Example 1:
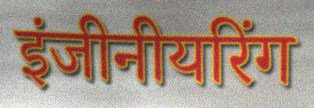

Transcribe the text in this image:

इंजीनीयरिंग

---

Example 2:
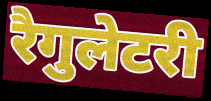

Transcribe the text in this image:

रैगुलेटरी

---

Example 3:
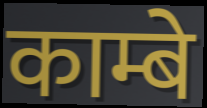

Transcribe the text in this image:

काम्बे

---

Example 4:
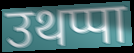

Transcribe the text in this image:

उथप्पा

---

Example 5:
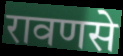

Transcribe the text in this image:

रावणसे